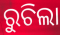
ରୁଚିଲା